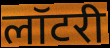
लॉटरी